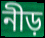
নীড়